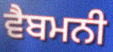
ਵੈਬਮਨੀ